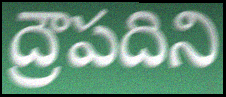
ద్రౌపదిని